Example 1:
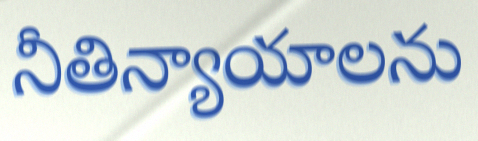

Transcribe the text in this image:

నీతిన్యాయాలను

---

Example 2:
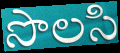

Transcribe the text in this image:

సొలసి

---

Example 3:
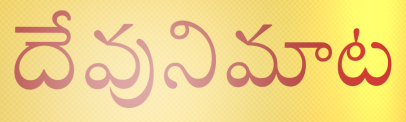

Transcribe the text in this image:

దేవునిమాట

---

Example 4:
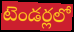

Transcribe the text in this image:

టెండర్లలో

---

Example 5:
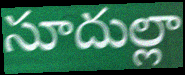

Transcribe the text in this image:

సూదుల్లా